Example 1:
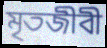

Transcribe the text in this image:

মৃতজীবী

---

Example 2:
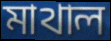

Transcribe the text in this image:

মাথাল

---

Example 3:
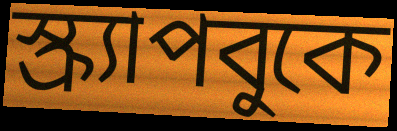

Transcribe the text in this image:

স্ক্র্যাপবুকে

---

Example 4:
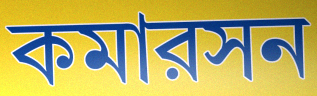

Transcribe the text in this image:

কমারসন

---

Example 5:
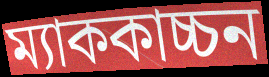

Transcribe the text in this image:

ম্যাককাচ্চন